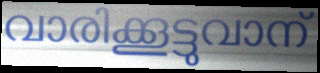
വാരിക്കൂട്ടുവാന്